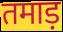
तमाड़